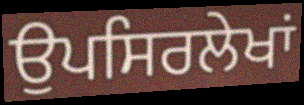
ਉਪਸਿਰਲੇਖਾਂ